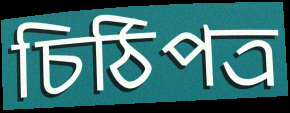
চিঠিপত্র